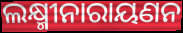
ଲକ୍ଷ୍ମୀନାରାୟଣନ